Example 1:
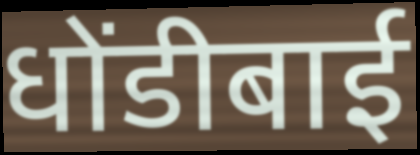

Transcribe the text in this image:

धोंडीबाई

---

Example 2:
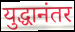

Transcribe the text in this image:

युद्धानंतर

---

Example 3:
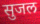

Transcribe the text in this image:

सुजल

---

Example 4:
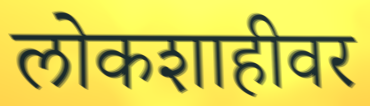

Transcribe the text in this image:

लोकशाहीवर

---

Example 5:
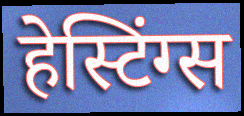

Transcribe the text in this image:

हेस्टिंग्स